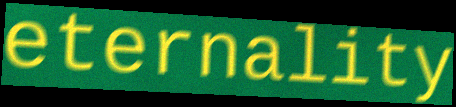
eternality